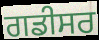
ਗਡੀਸਰ